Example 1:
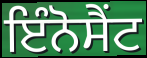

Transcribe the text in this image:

ਇੰਨੋਸੈਂਟ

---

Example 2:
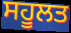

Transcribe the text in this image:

ਸਹੂਲਤ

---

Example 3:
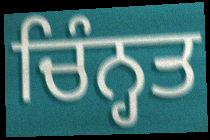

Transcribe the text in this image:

ਚਿੰਨ੍ਹਤ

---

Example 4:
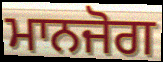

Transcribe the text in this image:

ਮਾਨਜੋਗ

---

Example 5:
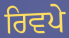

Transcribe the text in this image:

ਰਿਵਪੇ